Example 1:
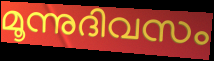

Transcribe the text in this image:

മൂന്നുദിവസം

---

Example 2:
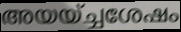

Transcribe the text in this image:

അയയ്ച്ചശേഷം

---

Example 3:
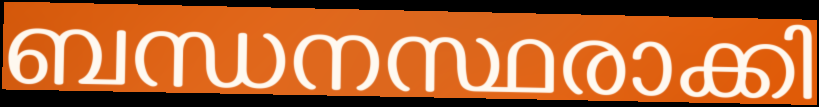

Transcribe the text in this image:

ബന്ധനസ്ഥരാക്കി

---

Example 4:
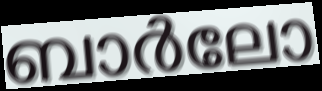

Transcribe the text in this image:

ബാർലോ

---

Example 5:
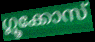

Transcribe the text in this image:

ഗ്ലൂക്കോസ്